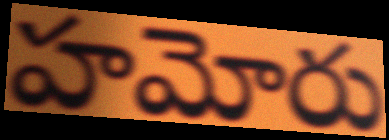
హమోరు